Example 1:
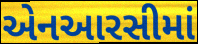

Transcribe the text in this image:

એનઆરસીમાં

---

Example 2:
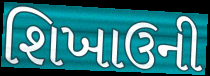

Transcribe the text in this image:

શિખાઉની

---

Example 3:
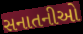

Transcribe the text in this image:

સનાતનીઓ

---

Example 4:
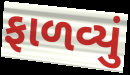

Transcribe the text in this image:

ફાળવ્યું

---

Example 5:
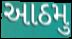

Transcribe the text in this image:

આઠમુ